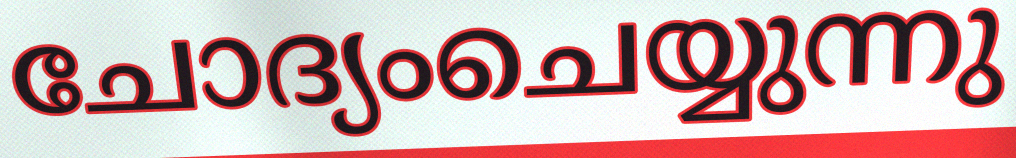
ചോദ്യംചെയ്യുന്നു